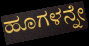
ಹೂಗಳನ್ನೇ